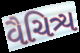
વૈચિત્ર્ય